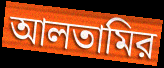
আলতামির